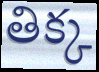
తిక్క